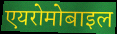
एयरोमोबाइल